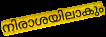
നിരാശയിലാകും